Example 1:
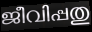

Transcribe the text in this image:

ജീവിപ്പതു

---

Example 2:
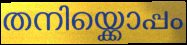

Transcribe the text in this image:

തനിയ്ക്കൊപ്പം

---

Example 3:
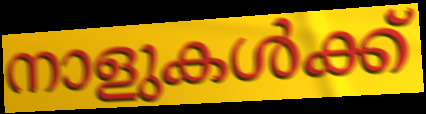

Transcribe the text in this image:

നാളുകൾക്ക്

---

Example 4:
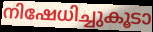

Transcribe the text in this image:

നിഷേധിച്ചുകൂടാ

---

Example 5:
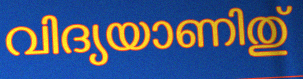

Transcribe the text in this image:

വിദ്യയാണിതു്